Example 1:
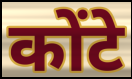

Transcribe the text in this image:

कोंटे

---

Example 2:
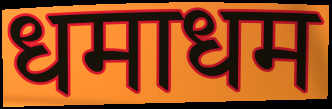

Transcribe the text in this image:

धमाधम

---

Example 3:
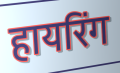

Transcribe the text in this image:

हायरिंग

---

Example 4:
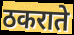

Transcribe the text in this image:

ठकराते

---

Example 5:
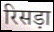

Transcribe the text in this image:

रिसड़ा